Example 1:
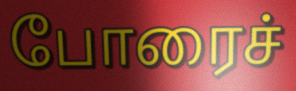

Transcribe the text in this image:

போரைச்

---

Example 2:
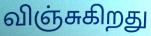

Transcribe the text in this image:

விஞ்சுகிறது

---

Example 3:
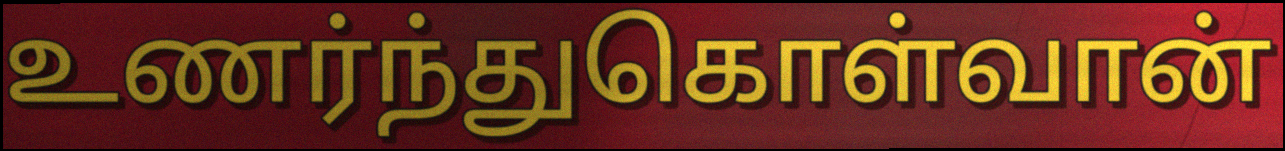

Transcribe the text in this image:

உணர்ந்துகொள்வான்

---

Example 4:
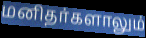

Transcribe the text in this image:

மனிதர்களாலும்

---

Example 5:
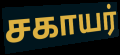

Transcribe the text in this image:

சகாயர்